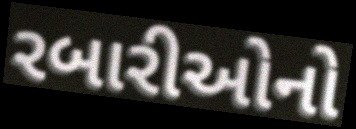
રબારીઓનો